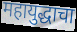
महायुद्धाचा